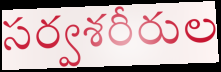
సర్వశరీరుల